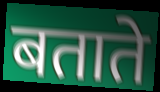
बताते